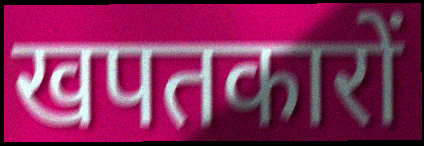
खपतकारों